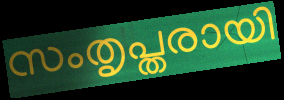
സംതൃപ്തരായി